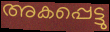
അകപ്പെട്ടു